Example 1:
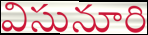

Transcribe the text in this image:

విసునూరి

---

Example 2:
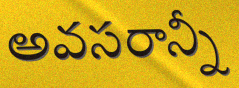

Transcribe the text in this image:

అవసరాన్నీ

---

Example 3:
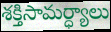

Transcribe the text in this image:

శక్తిసామర్ధ్యాలు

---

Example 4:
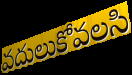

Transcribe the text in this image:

వదులుకోవలసి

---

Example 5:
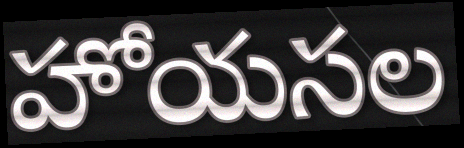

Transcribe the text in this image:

హోయసల